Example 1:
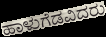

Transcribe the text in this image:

ಹಾಳುಗೆಡವಿದರು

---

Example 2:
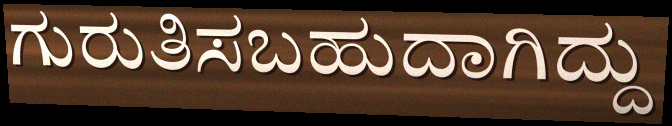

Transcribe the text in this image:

ಗುರುತಿಸಬಹುದಾಗಿದ್ದು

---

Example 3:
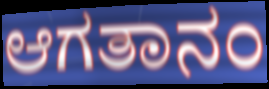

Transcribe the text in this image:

ಆಗತಾನಂ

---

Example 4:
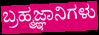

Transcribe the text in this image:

ಬ್ರಹ್ಮಜ್ಞಾನಿಗಳು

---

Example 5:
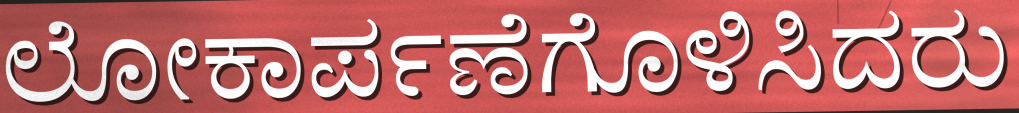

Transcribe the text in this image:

ಲೋಕಾರ್ಪಣೆಗೊಳಿಸಿದರು